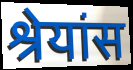
श्रेयांस